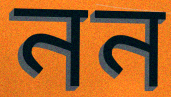
নন